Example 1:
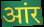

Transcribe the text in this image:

आंर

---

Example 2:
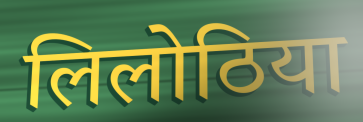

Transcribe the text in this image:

लिलोठिया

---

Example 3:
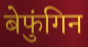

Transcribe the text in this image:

बेफुंगिन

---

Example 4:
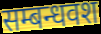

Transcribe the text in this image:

सम्बन्धवश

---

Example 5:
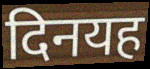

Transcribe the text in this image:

दिनयह